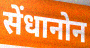
सेंधानोन